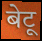
बेटू